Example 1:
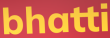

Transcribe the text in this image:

bhatti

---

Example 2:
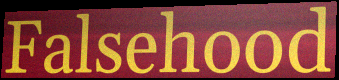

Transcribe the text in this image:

Falsehood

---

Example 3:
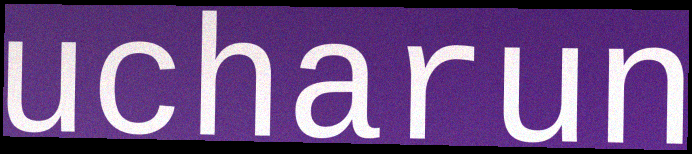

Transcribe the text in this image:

ucharun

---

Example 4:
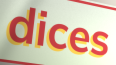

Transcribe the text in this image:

dices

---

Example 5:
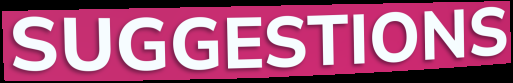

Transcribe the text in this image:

SUGGESTIONS